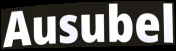
Ausubel